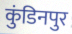
कुंडिनपुर